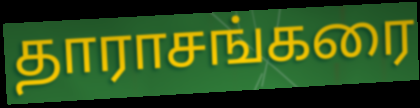
தாராசங்கரை